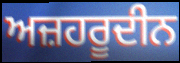
ਅਜ਼ਹਰੂਦੀਨ